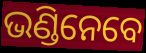
ଭଣ୍ଡିନେବେ